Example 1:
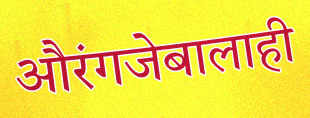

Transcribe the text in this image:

औरंगजेबालाही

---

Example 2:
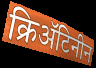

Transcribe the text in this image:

क्रिॲटिनीन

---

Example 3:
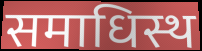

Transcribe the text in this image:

समाधिस्थ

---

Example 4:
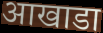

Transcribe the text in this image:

आखाडा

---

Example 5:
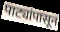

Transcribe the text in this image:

पाट्यांपासून